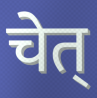
चेत्